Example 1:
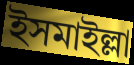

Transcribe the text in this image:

ইসমাইল্লা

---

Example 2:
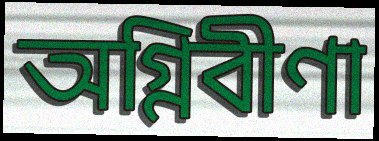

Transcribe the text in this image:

অগ্নিবীণা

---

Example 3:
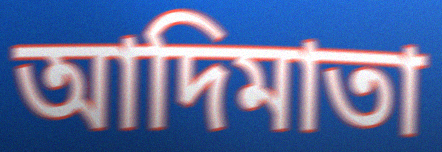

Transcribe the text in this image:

আদিমাতা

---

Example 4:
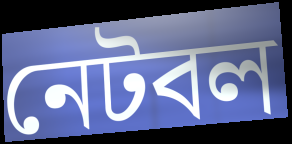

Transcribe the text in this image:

নেটবল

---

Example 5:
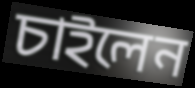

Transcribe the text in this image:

চাইলেন